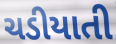
ચડીયાતી